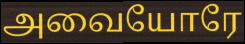
அவையோரே